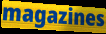
magazines